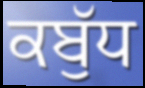
ਕਬੁੱਧ